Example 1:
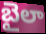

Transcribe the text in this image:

బైలా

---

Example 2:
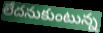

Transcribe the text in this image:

లేదనుకుంటున్న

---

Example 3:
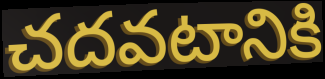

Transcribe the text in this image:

చదవటానికి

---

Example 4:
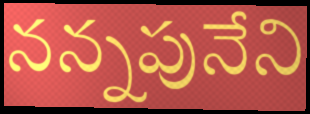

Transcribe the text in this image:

నన్నపునేని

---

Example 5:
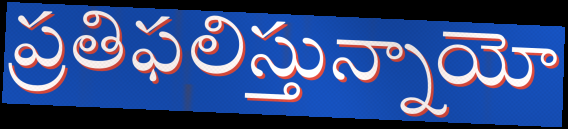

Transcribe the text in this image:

ప్రతిఫలిస్తున్నాయో